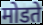
मोडते